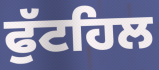
ਫੁੱਟਹਿਲ